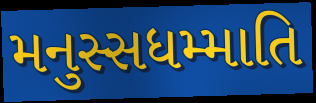
મનુસ્સધમ્માતિ